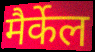
मैर्केल